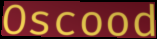
Oscood